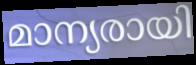
മാന്യരായി